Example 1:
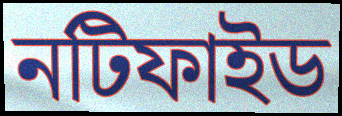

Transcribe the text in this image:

নটিফাইড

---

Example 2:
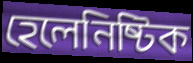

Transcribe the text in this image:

হেলেনিষ্টিক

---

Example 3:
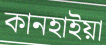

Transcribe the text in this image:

কানহাইয়া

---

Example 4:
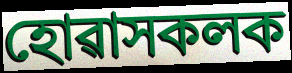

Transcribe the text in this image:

হোৱাসকলক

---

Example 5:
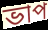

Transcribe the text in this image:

ভাপ